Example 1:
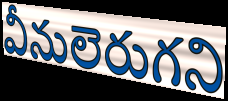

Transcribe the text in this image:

వీనులెరుగని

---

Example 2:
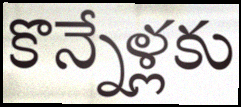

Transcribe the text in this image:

కొన్నేళ్లకు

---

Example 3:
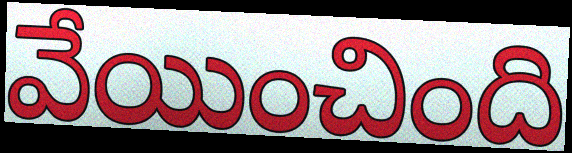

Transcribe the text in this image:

వేయించింది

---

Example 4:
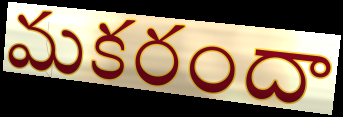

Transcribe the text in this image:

మకరందా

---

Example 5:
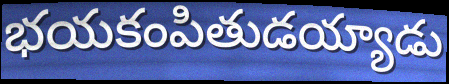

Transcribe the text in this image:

భయకంపితుడయ్యాడు